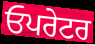
ਓਪਰੇਟਰ